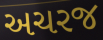
અચરજ